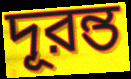
দূরন্ত